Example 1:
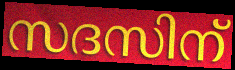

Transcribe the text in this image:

സദസിന്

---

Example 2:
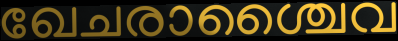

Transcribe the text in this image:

ഖേചരാശ്ചൈവ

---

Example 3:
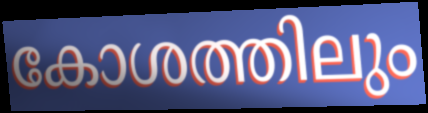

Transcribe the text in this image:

കോശത്തിലും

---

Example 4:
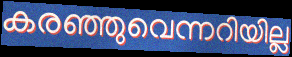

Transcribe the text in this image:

കരഞ്ഞുവെന്നറിയില്ല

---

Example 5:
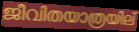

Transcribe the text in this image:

ജീവിതയാത്രയില്